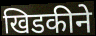
खिडकीने